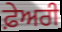
ਫ਼ੇਅਰੀ